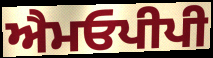
ਐਮਓਪੀਪੀ